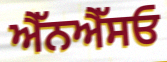
ਐੱਨਐੱਸਓ